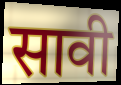
सावी